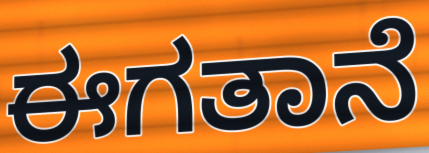
ಈಗತಾನೆ